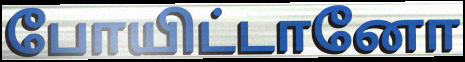
போயிட்டானோ